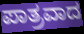
ಪಾತ್ರವಾದ